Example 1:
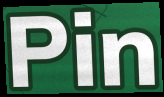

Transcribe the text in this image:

Pin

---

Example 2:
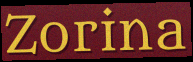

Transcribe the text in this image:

Zorina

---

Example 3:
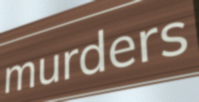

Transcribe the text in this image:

murders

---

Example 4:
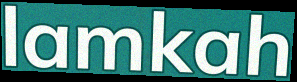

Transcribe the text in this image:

lamkah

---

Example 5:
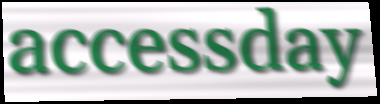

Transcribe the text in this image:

accessday